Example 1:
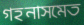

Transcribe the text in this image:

গহনাসমেত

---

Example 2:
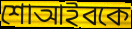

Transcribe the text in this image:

শোআইবকে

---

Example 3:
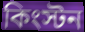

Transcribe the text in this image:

কিংস্টন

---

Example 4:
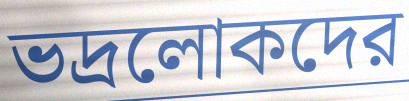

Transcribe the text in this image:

ভদ্রলোকদের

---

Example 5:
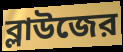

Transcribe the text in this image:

ব্লাউজের